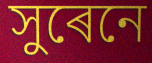
সুৰেনে